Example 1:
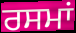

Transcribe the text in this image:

ਰਸਮਾਂ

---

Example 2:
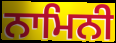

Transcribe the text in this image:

ਨਾਮਿਨੀ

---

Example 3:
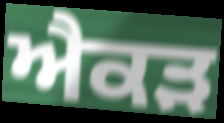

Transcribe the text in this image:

ਐਕੜ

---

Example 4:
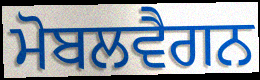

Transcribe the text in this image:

ਮੋਬਲਵੈਗਨ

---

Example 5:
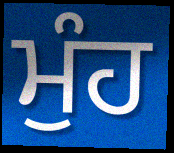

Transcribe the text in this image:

ਮੁੰਹ